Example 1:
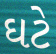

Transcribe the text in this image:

ઘટે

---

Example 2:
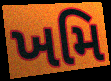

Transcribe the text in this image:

ખમિ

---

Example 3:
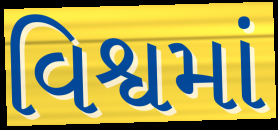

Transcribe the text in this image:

વિશ્વમાં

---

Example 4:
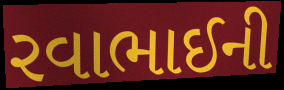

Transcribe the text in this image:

રવાભાઈની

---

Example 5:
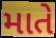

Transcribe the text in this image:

માતે